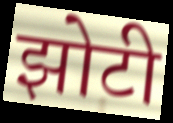
झोटी